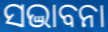
ସଦ୍ଭାବନା